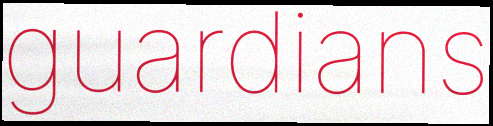
guardians